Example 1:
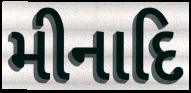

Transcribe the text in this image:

મીનાદિ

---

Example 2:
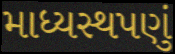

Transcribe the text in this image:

માધ્યસ્થપણું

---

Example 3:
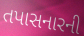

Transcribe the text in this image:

તપાસનારની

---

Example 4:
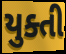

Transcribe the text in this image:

યુક્તી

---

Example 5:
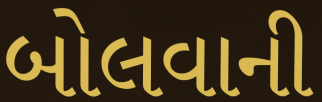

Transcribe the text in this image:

બોલવાની